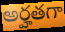
అర్హతగా